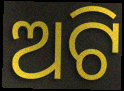
ଅଟି